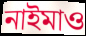
নাইমাও